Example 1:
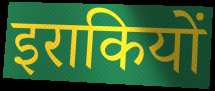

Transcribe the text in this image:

इराकियों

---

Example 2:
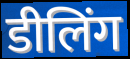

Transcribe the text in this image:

डीलिंग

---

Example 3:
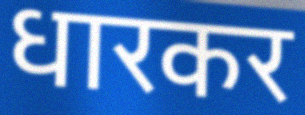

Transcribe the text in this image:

धारकर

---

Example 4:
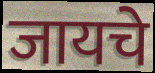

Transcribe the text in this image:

जायचे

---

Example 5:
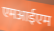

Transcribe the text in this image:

एमआईएम